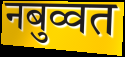
नबुव्वत